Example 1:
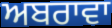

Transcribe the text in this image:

ਅਬਰਾਵਾ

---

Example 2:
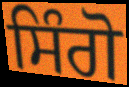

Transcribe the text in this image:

ਸਿੰਗੋ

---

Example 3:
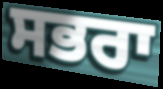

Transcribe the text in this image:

ਸਭਰਾ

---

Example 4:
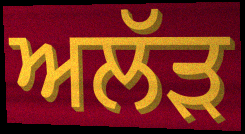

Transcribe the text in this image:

ਅਲੱੜ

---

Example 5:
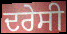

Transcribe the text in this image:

ਦਰੇਸੀ